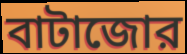
বাটাজোর